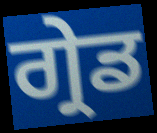
ਗ੍ਰੇਡ